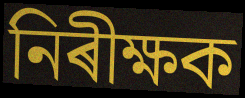
নিৰীক্ষক